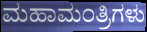
ಮಹಾಮಂತ್ರಿಗಳು